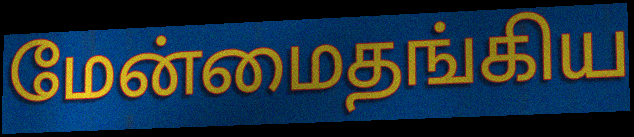
மேன்மைதங்கிய